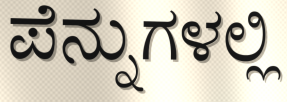
ಪೆನ್ನುಗಳಲ್ಲಿ